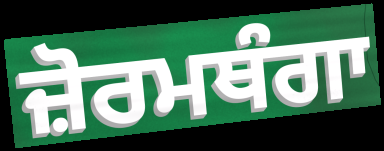
ਜ਼ੋਰਮਥੰਗਾ